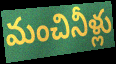
మంచినీళ్లు